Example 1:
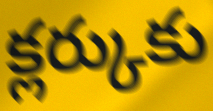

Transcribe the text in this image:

క్లర్కుకు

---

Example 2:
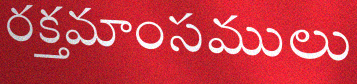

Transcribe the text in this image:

రక్తమాంసములు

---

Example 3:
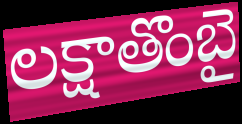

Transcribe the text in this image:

లక్షాతొంబై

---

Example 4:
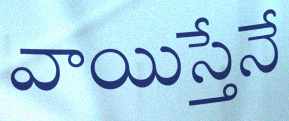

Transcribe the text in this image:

వాయిస్తేనే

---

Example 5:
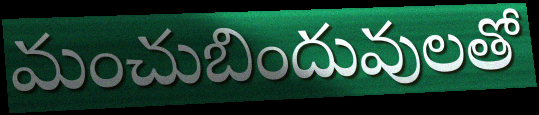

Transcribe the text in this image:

మంచుబిందువులతో